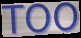
TOO